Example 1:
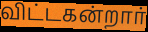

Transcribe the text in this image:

விட்டகன்றார்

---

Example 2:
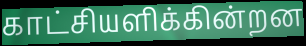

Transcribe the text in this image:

காட்சியளிக்கின்றன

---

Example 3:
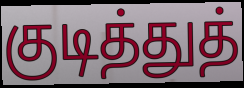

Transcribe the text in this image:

குடித்துத்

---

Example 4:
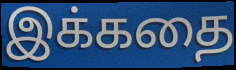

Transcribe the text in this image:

இக்கதை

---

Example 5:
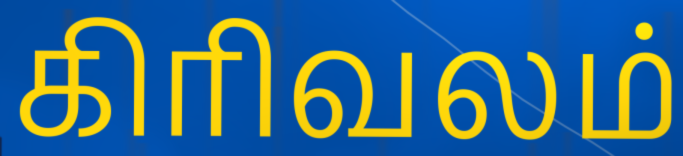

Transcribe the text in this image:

கிரிவலம்